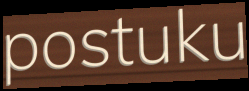
postuku